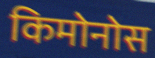
किमोनोस